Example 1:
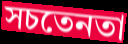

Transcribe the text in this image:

সচতেনতা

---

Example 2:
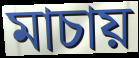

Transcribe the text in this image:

মাচায়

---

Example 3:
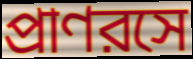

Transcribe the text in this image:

প্রাণরসে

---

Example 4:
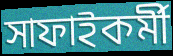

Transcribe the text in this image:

সাফাইকর্মী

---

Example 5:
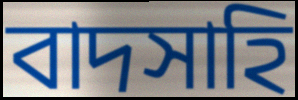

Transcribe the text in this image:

বাদসাহি